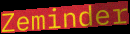
Zeminder